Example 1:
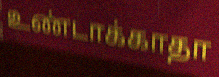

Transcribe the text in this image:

உண்டாக்காதா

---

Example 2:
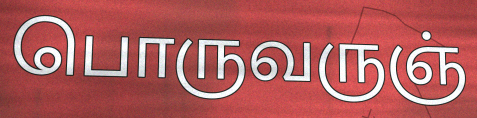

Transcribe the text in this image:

பொருவருஞ்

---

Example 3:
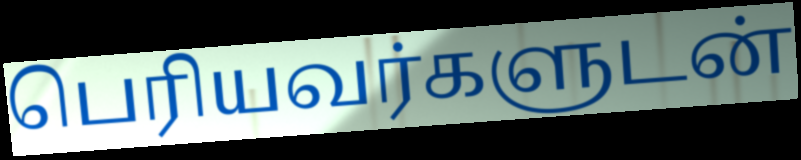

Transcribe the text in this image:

பெரியவர்களுடன்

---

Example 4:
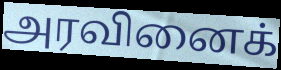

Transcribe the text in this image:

அரவினைக்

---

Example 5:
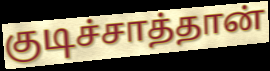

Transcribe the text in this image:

குடிச்சாத்தான்